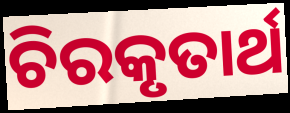
ଚିରକୃତାର୍ଥ